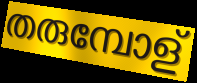
തരുമ്പോള്